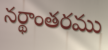
నర్థాంతరము